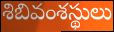
శిబివంశస్థులు